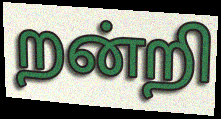
றன்றி